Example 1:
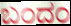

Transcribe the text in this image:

ಬಂದಂ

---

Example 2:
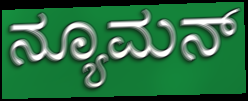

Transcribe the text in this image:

ನ್ಯೂಮನ್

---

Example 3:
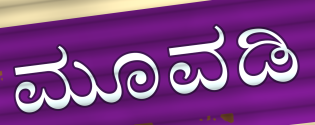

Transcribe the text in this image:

ಮೂವಡಿ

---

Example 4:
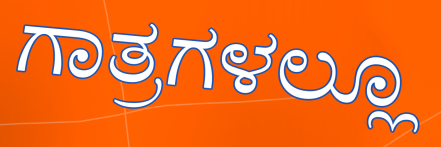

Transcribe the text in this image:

ಗಾತ್ರಗಳಲ್ಲೂ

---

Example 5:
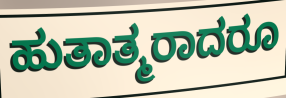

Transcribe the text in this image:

ಹುತಾತ್ಮರಾದರೂ